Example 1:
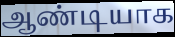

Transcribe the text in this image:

ஆண்டியாக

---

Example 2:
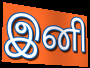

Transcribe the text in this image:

இனி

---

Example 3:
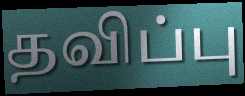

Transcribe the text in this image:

தவிப்பு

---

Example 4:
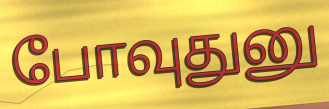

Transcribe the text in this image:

போவுதுனு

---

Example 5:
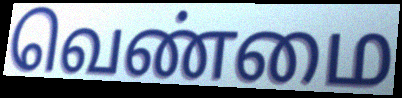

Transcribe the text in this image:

வெண்மை